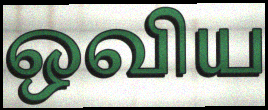
ஒவிய